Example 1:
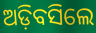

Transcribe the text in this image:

ଅଡ଼ିବସିଲେ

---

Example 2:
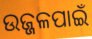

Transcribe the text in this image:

ଉଜ୍ଜଳପାଇଁ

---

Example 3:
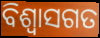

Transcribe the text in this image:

ବିଶ୍ଵାସଗତ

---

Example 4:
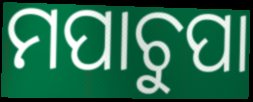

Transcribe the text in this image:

ମପାଚୁପା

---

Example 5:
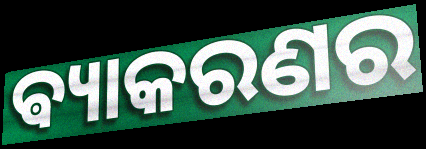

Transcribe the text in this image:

ଵ୍ୟାକରଣର